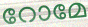
റോമേ